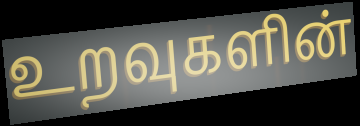
உறவுகளின்